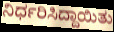
ನಿರ್ಧರಿಸಿದ್ದಾಯಿತು